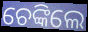
ଚେଙ୍କିଲେ